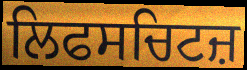
ਲਿਫਸਚਿਟਜ਼